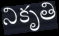
నికృతి